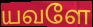
யவளே